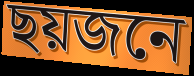
ছয়জনে